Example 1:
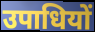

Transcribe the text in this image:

उपाधियों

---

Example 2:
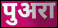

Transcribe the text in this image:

पुअरा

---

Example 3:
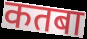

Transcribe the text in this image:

कतबा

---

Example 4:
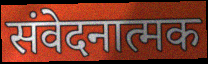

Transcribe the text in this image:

संवेदनात्मक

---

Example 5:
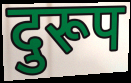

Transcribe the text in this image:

दुरूप